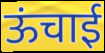
ऊंचाई